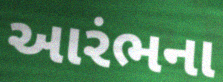
આરંભના